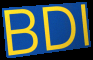
BDI